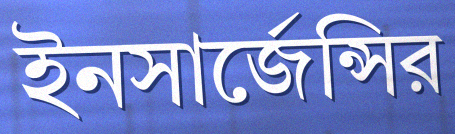
ইনসার্জেন্সির